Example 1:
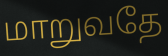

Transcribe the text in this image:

மாறுவதே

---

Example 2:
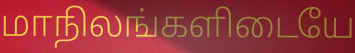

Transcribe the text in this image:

மாநிலங்களிடையே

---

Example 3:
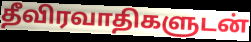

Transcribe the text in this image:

தீவிரவாதிகளுடன்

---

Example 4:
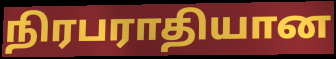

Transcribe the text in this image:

நிரபராதியான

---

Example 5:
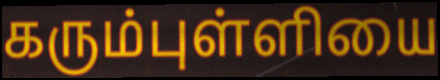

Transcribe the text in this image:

கரும்புள்ளியை